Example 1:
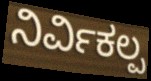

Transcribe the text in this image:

ನಿರ್ವಿಕಲ್ಪ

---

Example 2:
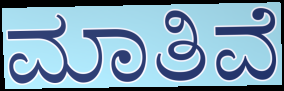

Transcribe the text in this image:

ಮಾತಿವೆ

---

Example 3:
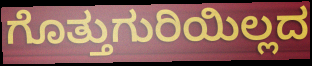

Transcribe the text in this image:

ಗೊತ್ತುಗುರಿಯಿಲ್ಲದ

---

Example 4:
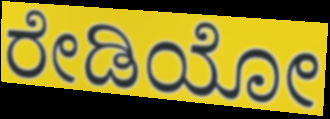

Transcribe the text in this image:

ರೇಡಿಯೋ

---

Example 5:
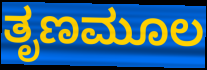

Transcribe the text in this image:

ತೃಣಮೂಲ